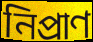
নিপ্রাণ